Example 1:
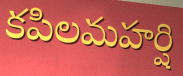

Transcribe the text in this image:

కపిలమహర్షి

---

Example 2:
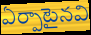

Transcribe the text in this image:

ఏర్పాటైనవి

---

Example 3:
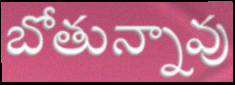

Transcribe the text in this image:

బోతున్నావు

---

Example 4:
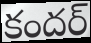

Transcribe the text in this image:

కందర్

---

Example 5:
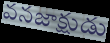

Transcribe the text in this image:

వనజాక్షుడు